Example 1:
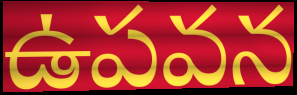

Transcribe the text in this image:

ఉపవన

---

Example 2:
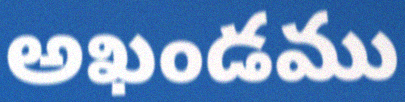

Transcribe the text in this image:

అఖండము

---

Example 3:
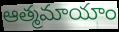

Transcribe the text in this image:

ఆత్మమాయాం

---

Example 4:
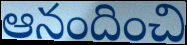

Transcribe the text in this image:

ఆనందించి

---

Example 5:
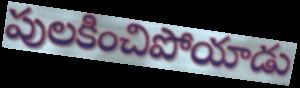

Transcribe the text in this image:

పులకించిపోయాడు